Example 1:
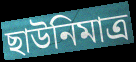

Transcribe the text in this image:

ছাউনিমাত্র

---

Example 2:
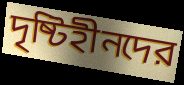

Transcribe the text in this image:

দৃষ্টিহীনদের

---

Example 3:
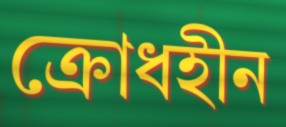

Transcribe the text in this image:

ক্রোধহীন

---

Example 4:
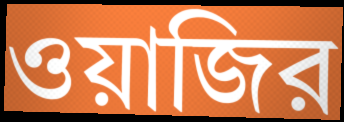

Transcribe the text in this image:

ওয়াজির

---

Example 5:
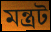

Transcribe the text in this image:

মন্ত্রট